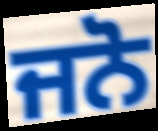
ਜਨੋ